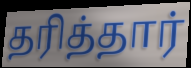
தரித்தார்